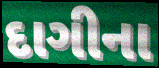
દાગીના